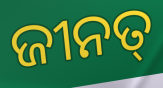
ଜୀନତ୍